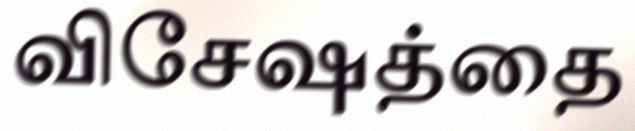
விசேஷத்தை